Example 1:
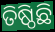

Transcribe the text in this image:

ତିଷ୍ଠିଛି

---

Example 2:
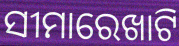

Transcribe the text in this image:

ସୀମାରେଖାଟି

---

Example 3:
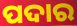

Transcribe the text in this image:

ପଦାର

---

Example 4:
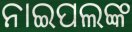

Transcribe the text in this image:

ନାଇପଲଙ୍କ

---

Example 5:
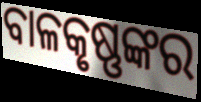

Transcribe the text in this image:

ବାଳକୃଷ୍ଣଙ୍କର